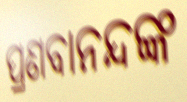
ପ୍ରଣବାନନ୍ଦଙ୍କ